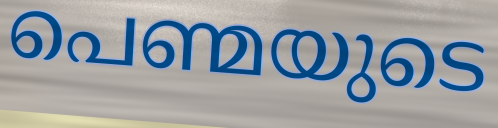
പെണ്മയുടെ